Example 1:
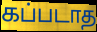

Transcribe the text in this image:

கப்படாத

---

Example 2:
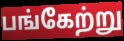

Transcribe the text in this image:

பங்கேற்று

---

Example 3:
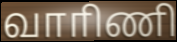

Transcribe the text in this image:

வாரிணி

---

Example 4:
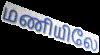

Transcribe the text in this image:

மணியிலே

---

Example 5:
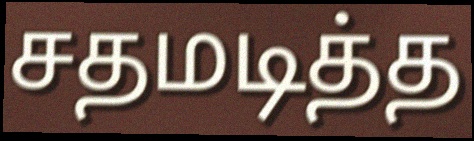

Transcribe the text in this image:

சதமடித்த